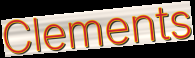
Clements